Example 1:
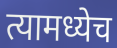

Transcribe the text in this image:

त्यामध्येच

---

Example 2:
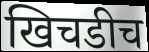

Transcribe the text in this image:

खिचडीच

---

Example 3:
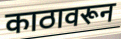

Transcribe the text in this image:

काठावरून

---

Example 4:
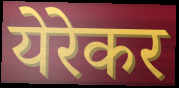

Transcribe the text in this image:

येरेकर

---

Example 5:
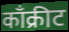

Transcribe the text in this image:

काँक्रीट